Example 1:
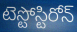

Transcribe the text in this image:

టెస్టోస్టిరోన్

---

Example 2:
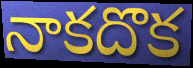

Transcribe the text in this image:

నాకదొక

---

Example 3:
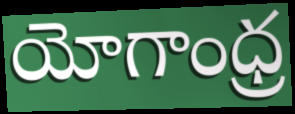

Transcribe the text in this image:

యోగాంధ్ర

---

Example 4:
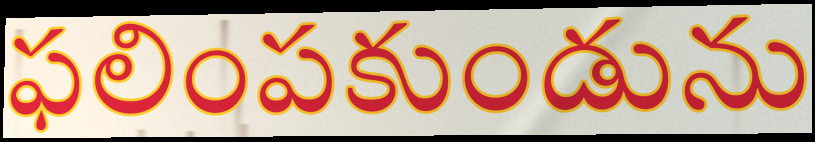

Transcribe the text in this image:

ఫలింపకుండును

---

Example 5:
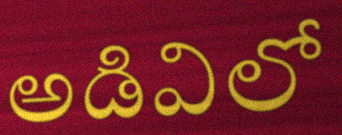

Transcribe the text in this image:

అడివిలో